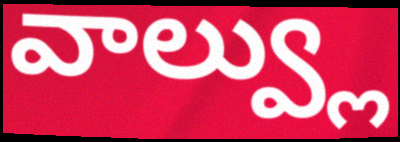
వాల్వ్లు